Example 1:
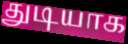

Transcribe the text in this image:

துடியாக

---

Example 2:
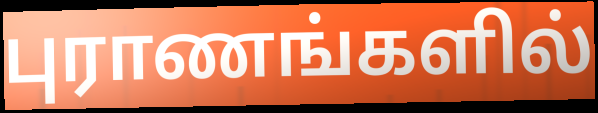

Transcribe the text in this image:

புராணங்களில்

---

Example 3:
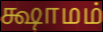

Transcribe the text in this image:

க்ஷாமம்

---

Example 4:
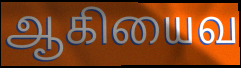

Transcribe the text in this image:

ஆகியைவ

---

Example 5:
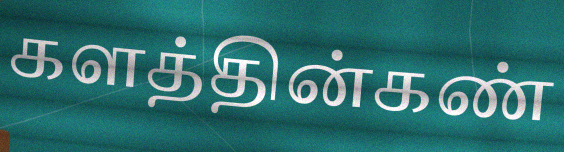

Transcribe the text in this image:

களத்தின்கண்